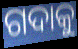
ଗଦାକୁ